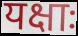
यक्षाः